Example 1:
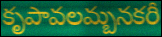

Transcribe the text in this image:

కృపావలమ్బనకరీ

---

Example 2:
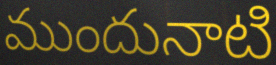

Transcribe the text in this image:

ముందునాటి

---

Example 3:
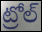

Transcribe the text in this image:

ట్రోల్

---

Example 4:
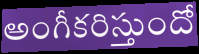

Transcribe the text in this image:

అంగీకరిస్తుందో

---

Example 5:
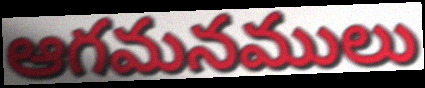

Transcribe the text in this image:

ఆగమనములు